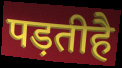
पड़तीहै